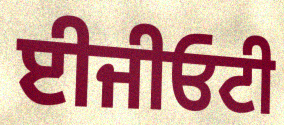
ਈਜੀਓਟੀ